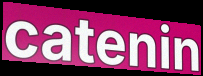
catenin